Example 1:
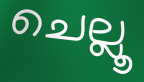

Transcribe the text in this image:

ചെല്ലൂ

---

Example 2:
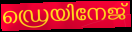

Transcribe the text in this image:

ഡ്രെയിനേജ്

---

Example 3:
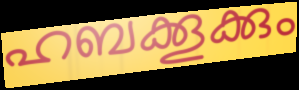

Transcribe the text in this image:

ഹബക്കൂക്കും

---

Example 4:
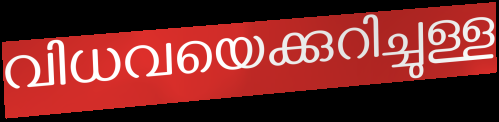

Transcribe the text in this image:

വിധവയെക്കുറിച്ചുള്ള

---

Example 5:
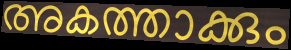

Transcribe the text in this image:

അകത്താക്കും